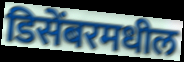
डिसेंबरमधील